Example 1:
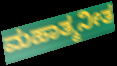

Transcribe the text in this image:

ಮಹಾತ್ಮನೀತ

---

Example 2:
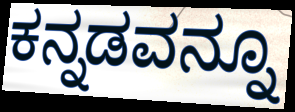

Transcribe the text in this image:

ಕನ್ನಡವನ್ನೂ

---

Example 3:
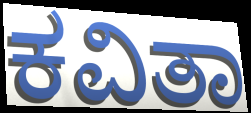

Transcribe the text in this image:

ಕವಿತಾ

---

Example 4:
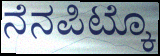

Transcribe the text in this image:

ನೆನಪಿಟ್ಕೊ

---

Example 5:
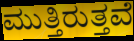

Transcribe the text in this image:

ಮುತ್ತಿರುತ್ತವೆ